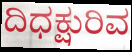
ದಿಧಕ್ಷುರಿವ